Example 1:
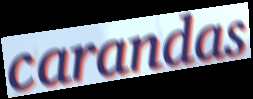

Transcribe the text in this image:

carandas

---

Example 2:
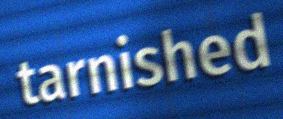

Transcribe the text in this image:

tarnished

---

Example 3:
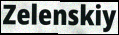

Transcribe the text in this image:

Zelenskiy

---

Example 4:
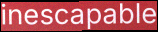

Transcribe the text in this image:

inescapable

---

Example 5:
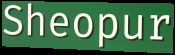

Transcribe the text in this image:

Sheopur